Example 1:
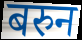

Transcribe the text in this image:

बरुन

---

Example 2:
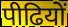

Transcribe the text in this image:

पीढियों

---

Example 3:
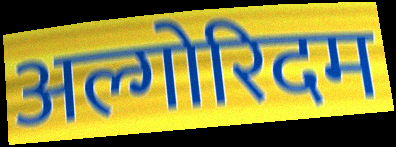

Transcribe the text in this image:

अल्गोरिदम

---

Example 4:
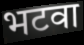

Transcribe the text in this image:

भटवा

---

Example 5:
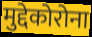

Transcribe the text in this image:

मुद्देकोरोना